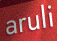
aruli